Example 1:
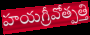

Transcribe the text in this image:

హయగ్రీవోత్పత్తి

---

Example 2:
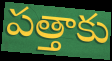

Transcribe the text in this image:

పత్తాకు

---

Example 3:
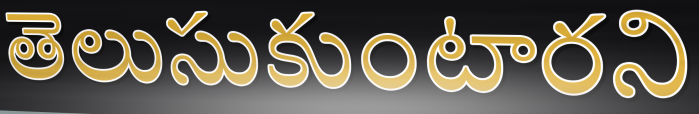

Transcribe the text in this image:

తెలుసుకుంటారని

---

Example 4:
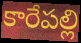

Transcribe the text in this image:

కారేపల్లి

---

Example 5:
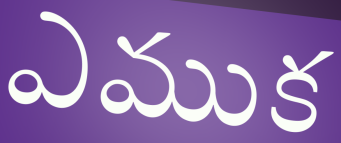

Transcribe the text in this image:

ఎముక